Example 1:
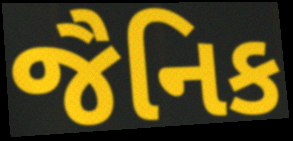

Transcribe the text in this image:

જૈનિક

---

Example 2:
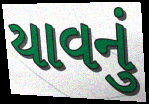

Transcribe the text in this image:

યાવનું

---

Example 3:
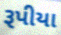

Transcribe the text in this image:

રૂપીયા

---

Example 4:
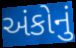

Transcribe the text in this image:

અંકોનું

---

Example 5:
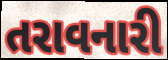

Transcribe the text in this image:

તરાવનારી